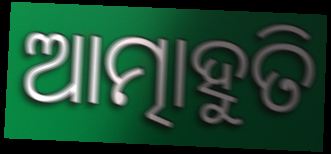
ଆତ୍ମାହୁତି